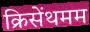
क्रिसेंथमम